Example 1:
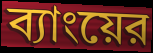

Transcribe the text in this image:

ব্যাংয়ের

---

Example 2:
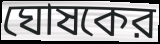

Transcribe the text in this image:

ঘোষকের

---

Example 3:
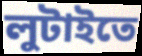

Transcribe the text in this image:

লুটাইতে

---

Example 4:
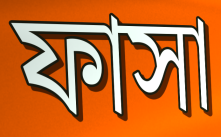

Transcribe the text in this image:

ফাসা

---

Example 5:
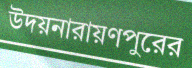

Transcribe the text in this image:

উদয়নারায়ণপুরের